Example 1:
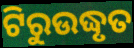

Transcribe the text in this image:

ଟିରୁଉଦ୍ଧୃତ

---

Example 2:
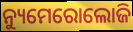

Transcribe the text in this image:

ନ୍ୟୁମେରୋଲୋଜି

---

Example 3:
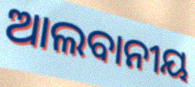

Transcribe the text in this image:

ଆଲବାନୀୟ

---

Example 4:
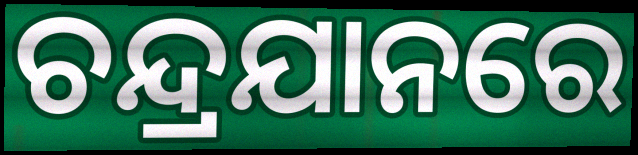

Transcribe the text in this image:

ଚନ୍ଦ୍ରଯାନରେ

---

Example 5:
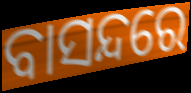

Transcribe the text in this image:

ବାସନ୍ଦରେ